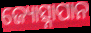
ଜ୍ୟୋତ୍ସ୍ନାପାନ